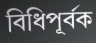
বিধিপূর্বক